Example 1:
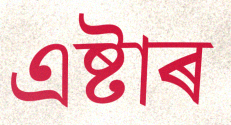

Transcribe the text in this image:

এষ্টাৰ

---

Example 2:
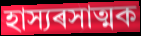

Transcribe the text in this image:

হাস্যৰসাত্মক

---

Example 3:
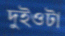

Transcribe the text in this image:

দুইওটা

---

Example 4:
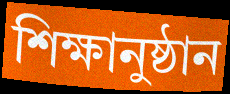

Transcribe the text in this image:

শিক্ষানুষ্ঠান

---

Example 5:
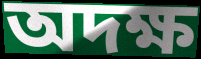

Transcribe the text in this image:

অদক্ষ